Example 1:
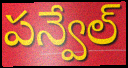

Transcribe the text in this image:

పన్వేల్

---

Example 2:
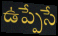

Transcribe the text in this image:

ఉప్పేసే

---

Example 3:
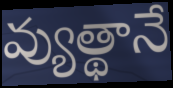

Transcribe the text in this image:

వ్యుత్థానే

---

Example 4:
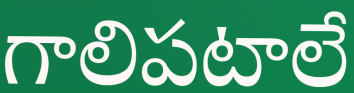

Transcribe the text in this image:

గాలిపటాలే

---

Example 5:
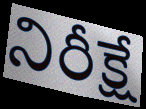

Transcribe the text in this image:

నిరీక్షే